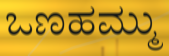
ಒಣಹಮ್ಮು